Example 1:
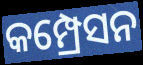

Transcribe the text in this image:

କମ୍ପ୍ରେସନ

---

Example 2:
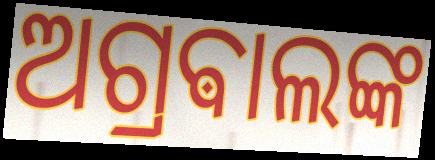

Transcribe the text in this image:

ଅଗ୍ରଵାଲଙ୍କ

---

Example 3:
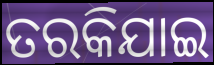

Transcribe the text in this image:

ତରକିଯାଇ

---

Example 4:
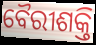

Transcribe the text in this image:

ବୈରୀଶକ୍ତି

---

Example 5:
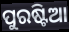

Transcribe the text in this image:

ପୁରଷ୍ଟିଆ